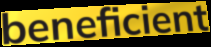
beneficient